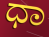
ಧಾ